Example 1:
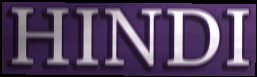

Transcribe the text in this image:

HINDI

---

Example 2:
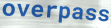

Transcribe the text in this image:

overpass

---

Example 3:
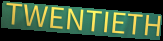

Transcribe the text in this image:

TWENTIETH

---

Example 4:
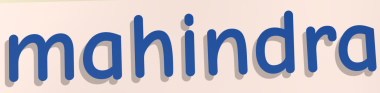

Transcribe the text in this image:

mahindra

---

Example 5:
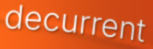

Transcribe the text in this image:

decurrent